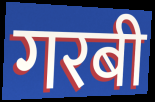
गरबी